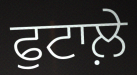
ਫੁਟਾਲ਼ੇ